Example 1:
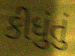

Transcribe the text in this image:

કીધુંતું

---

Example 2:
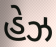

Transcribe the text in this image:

હેઝ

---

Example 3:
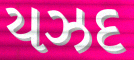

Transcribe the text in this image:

યઝદ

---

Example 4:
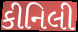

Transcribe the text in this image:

કીનિલી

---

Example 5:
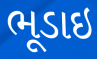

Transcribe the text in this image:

ભૂડાઇ